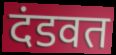
दंडवत